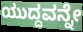
ಯುದ್ದವನ್ನೇ